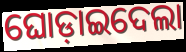
ଘୋଡ଼ାଇଦେଲା